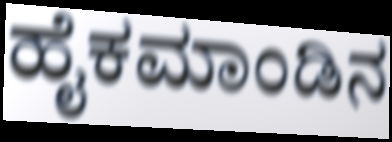
ಹೈಕಮಾಂಡಿನ